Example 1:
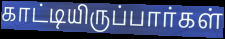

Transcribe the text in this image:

காட்டியிருப்பார்கள்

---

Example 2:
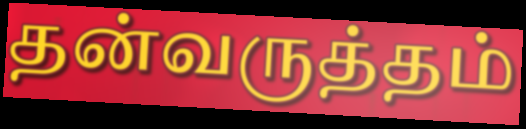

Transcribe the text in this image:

தன்வருத்தம்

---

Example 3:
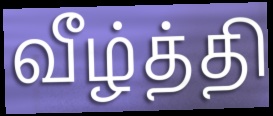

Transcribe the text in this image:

வீழ்த்தி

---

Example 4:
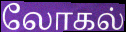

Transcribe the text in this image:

லோகல்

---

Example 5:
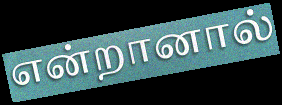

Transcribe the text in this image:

என்றானால்